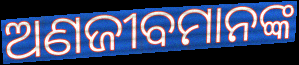
ଅଣଜୀବମାନଙ୍କ